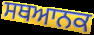
ਸਥਆਨਕ